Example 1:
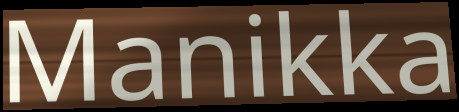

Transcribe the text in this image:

Manikka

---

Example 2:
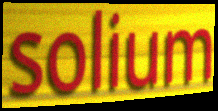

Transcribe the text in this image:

solium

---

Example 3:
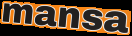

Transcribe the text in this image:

mansa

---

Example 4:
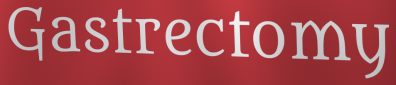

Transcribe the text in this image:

Gastrectomy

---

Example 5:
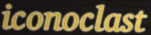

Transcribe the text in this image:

iconoclast